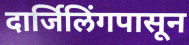
दार्जिलिंगपासून